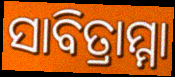
ସାବିତ୍ରାମ୍ମା